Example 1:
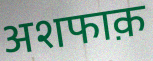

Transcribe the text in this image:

अशफाक़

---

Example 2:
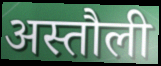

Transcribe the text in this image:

अस्तौली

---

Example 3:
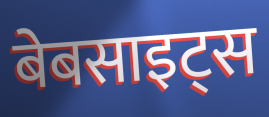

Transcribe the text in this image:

बेबसाइट्स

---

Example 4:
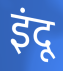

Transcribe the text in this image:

इंदू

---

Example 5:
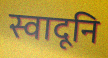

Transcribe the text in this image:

स्वादूनि